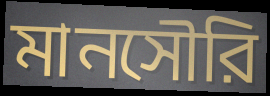
মানসৌরি